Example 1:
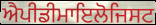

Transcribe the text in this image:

ਐਪੀਡੀਮਾਇਲੋਜਿਸਟ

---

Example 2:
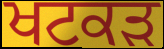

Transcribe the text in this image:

ਖਟਕੜ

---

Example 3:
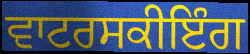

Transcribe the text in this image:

ਵਾਟਰਸਕੀਇੰਗ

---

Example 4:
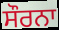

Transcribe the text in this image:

ਸੌਰਨਾ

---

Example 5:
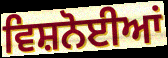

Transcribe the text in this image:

ਵਿਸ਼ਨੋਈਆਂ